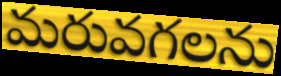
మరువగలను